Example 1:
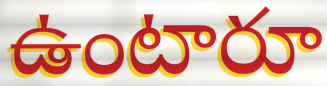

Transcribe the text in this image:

ఉంటారూ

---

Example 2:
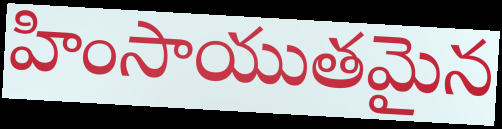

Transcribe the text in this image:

హింసాయుతమైన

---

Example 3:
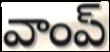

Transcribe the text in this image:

వాంప్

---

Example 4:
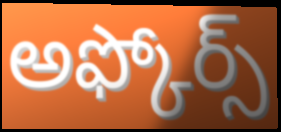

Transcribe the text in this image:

అఫ్కోర్స్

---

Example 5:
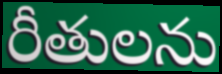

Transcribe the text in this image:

రీతులను